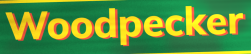
Woodpecker